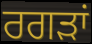
ਰਗੜਾਂ